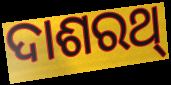
ଦାଶରଥ୍